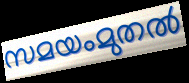
സമയംമുതൽ